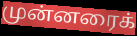
முன்னரைக்